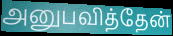
அனுபவித்தேன்